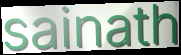
sainath